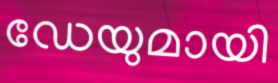
ഡേയുമായി